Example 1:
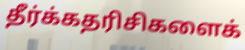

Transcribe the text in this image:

தீர்க்கதரிசிகளைக்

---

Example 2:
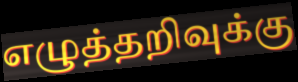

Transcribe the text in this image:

எழுத்தறிவுக்கு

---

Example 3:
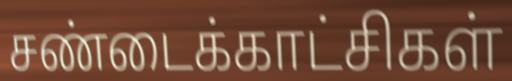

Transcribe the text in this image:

சண்டைக்காட்சிகள்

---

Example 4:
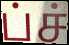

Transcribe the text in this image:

ப்ச்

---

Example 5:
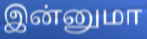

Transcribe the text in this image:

இன்னுமா